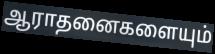
ஆராதனைகளையும்